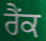
ਰੈੰਕ